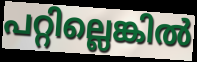
പറ്റില്ലെങ്കിൽ